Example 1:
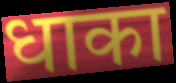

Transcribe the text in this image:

धाका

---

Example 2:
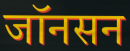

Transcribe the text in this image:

जॉनसन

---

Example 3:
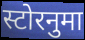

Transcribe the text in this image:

स्टोरनुमा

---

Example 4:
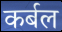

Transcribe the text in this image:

कर्बल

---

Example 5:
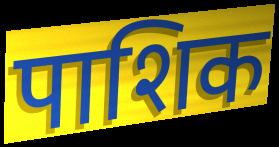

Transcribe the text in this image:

पाशिक